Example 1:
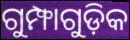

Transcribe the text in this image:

ଗୁମ୍ଫାଗୁଡ଼ିକ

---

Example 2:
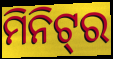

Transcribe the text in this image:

ମିନିଟ୍‌ର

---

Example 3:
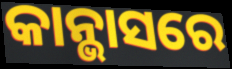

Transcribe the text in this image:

କାନ୍ଭାସରେ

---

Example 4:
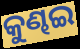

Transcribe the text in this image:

କୁଣ୍ଢଇ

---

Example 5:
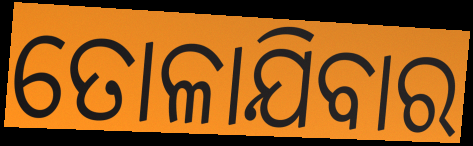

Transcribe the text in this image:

ତୋଳାଯିବାର